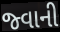
જ્વાની